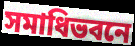
সমাধিভবনে